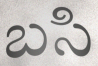
బసి